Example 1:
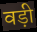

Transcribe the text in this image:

वड़ी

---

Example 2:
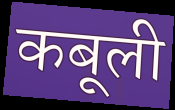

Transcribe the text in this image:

कबूली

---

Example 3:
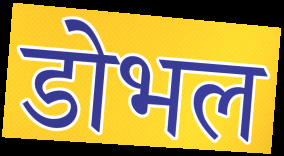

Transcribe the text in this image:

डोभल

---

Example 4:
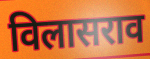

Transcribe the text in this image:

विलासराव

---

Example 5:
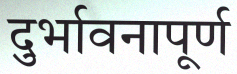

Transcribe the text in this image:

दुर्भावनापूर्ण